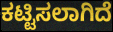
ಕಟ್ಟಿಸಲಾಗಿದೆ